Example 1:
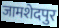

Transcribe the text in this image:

जामशेदपुर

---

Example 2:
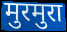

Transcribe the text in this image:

मुरमुरा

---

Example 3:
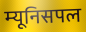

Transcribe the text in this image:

म्यूनिसपल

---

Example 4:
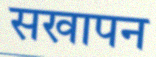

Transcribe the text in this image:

सखापन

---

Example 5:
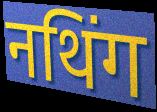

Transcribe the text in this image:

नथिंग